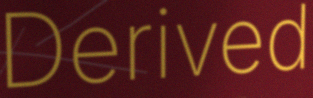
Derived